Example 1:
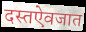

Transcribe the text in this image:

दस्तऐवजात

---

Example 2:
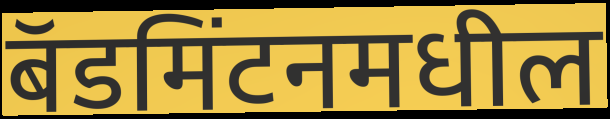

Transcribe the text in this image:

बॅडमिंटनमधील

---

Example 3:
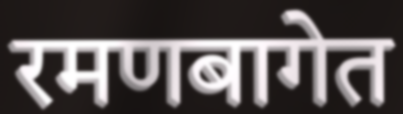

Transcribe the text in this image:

रमणबागेत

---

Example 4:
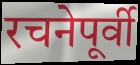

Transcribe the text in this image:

रचनेपूर्वी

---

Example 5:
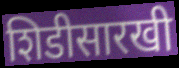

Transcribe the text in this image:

शिडीसारखी